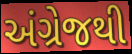
અંગ્રેજથી